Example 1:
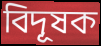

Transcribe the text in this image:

বিদূষক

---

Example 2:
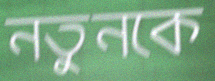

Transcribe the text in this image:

নতুনকে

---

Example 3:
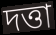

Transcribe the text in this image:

দত্তা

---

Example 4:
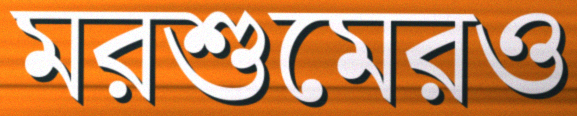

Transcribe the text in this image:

মরশুমেরও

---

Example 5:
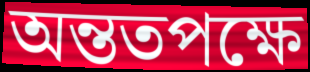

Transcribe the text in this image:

অন্ততপক্ষে